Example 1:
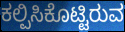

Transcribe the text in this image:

ಕಲ್ಪಿಸಿಕೊಟ್ಟಿರುವ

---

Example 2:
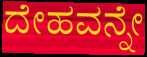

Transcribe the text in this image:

ದೇಹವನ್ನೇ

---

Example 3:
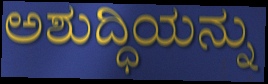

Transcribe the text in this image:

ಅಶುದ್ಧಿಯನ್ನು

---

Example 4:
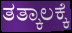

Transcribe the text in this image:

ತತ್ಕಾಲಕ್ಕೆ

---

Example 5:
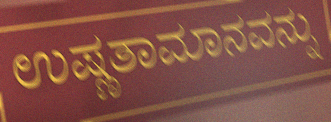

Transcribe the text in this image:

ಉಷ್ಣತಾಮಾನವನ್ನು